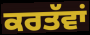
ਕਰਤੱਵਾਂ